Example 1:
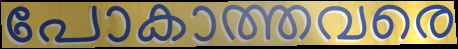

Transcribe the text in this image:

പോകാത്തവരെ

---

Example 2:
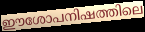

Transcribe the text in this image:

ഈശോപനിഷത്തിലെ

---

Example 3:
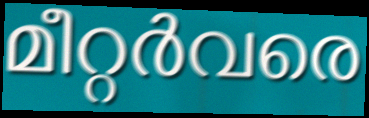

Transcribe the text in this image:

മീറ്റർവരെ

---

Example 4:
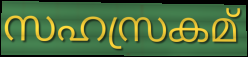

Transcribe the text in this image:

സഹസ്രകമ്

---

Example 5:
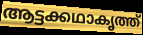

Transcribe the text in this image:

ആട്ടക്കഥാകൃത്ത്